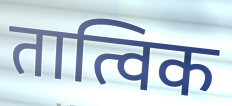
तात्विक